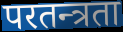
परतन्त्रता